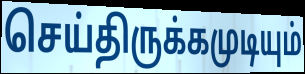
செய்திருக்கமுடியும்